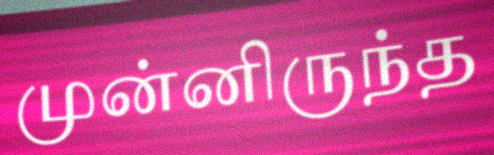
முன்னிருந்த